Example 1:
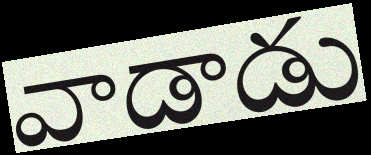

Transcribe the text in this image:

వాడాడు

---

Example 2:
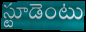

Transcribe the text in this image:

స్టూడెంటు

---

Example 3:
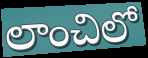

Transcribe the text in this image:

లాంచిలో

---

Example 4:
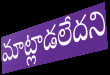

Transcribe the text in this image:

మాట్లాడలేదని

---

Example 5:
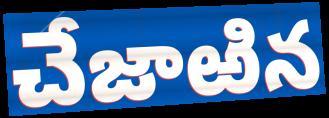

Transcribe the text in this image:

చేజాఱిన